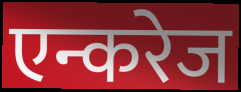
एन्करेज